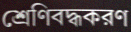
শ্রেণিবদ্ধকরণ